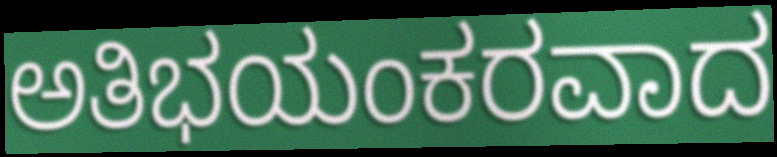
ಅತಿಭಯಂಕರವಾದ